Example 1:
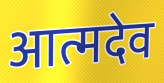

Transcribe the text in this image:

आत्मदेव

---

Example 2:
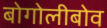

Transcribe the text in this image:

बोगोलीबोव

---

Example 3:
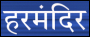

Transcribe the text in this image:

हरमंदिर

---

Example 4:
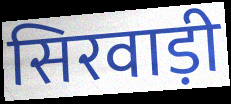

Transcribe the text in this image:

सिरवाड़ी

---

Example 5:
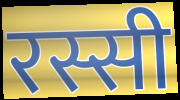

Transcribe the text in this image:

रस्सी